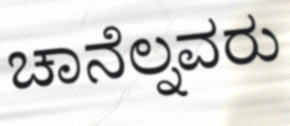
ಚಾನೆಲ್ನವರು